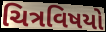
ચિત્રવિષયો